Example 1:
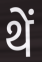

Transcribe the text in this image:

थें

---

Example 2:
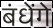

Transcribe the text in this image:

बंधेंगे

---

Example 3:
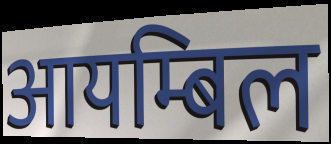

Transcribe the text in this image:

आयम्बिल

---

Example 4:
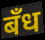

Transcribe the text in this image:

बँध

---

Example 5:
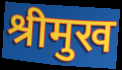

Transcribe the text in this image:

श्रीमुख